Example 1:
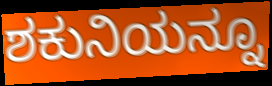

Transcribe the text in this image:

ಶಕುನಿಯನ್ನೂ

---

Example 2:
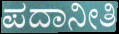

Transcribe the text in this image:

ಪದಾನೀತಿ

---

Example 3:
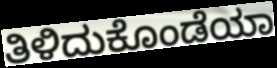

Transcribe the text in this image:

ತಿಳಿದುಕೊಂಡೆಯಾ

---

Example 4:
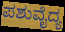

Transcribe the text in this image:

ಪಶುವೈದ್ಯ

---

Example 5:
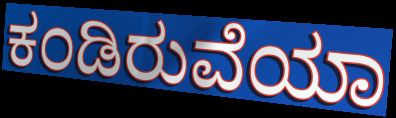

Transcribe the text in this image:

ಕಂಡಿರುವೆಯಾ